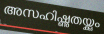
അസഹിഷ്ണുതയ്ക്കും